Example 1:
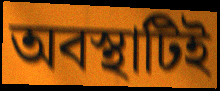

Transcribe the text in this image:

অবস্থাটিই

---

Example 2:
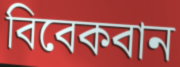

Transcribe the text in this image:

বিবেকবান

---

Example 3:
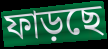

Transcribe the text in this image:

ফাড়ছে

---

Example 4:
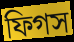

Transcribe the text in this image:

ফিগস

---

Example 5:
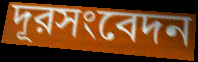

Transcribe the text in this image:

দূরসংবেদন